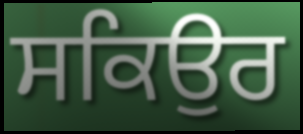
ਸਕਿਉਰ